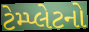
ટેમ્પ્લેટનો